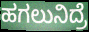
ಹಗಲುನಿದ್ರೆ